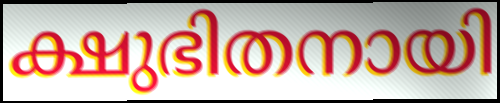
ക്ഷുഭിതനായി